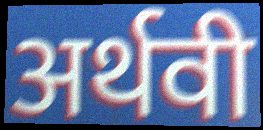
अर्थवी